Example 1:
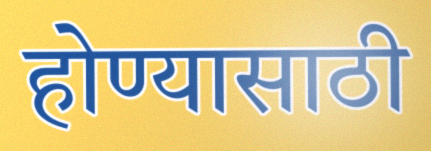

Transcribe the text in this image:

होण्यासाठी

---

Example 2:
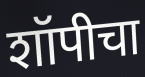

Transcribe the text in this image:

शॉपीचा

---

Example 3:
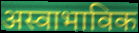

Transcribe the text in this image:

अस्वाभाविक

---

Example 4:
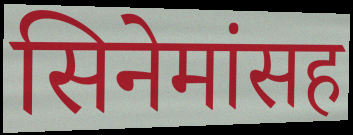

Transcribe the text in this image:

सिनेमांसह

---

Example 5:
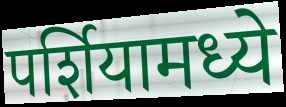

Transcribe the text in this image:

पर्शियामध्ये